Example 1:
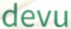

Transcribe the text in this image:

devu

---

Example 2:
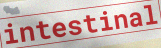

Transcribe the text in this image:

intestinal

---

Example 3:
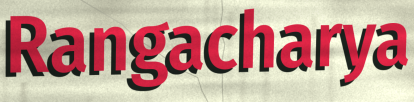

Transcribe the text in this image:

Rangacharya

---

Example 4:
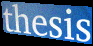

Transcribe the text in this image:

thesis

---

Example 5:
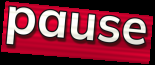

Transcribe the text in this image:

pause